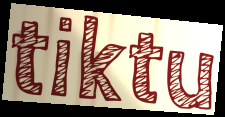
tiktu